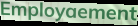
Employaement